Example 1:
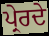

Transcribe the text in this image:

ਪ੍ਰੇਰਦੇ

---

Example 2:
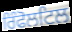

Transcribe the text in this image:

ਰਿੰਫੋਲਟਿਲ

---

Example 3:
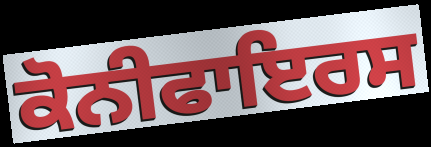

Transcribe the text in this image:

ਕੋਨੀਫਾਇਰਸ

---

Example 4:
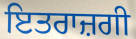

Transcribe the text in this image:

ਇਤਰਾਜ਼ਗੀ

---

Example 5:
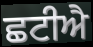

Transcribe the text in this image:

ਛਟੀਐ